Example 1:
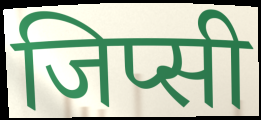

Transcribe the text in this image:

जिप्सी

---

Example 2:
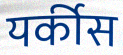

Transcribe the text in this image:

यर्कीस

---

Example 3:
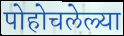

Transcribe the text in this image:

पोहोचलेल्या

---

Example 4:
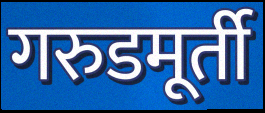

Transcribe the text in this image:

गरुडमूर्ती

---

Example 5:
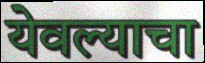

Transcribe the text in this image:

येवल्याचा